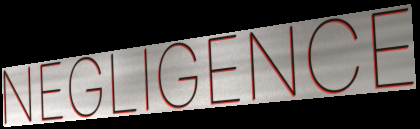
NEGLIGENCE